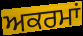
ਅਕਰਮਾਂ